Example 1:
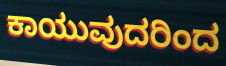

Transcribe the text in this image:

ಕಾಯುವುದರಿಂದ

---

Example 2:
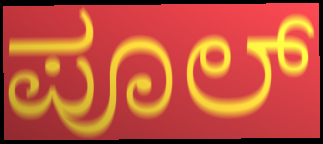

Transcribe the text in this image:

ಪೂಲ್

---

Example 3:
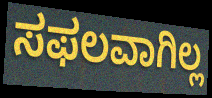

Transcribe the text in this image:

ಸಫಲವಾಗಿಲ್ಲ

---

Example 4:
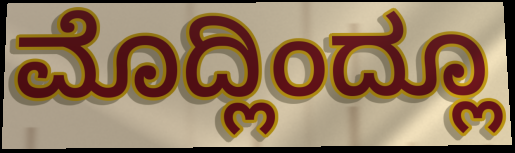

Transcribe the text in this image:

ಮೊದ್ಲಿಂದ್ಲೂ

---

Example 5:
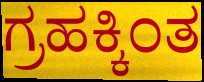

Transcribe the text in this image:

ಗ್ರಹಕ್ಕಿಂತ